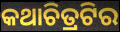
କଥାଚିତ୍ରଟିର